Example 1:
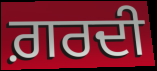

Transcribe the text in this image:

ਗ਼ਰਦੀ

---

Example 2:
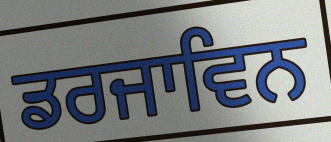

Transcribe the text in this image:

ਡਰਜਾਵਿਨ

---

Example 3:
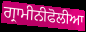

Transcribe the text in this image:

ਗ੍ਰਾਮੀਨੀਫੋਲੀਆ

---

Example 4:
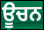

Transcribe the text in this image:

ਊਚਨ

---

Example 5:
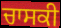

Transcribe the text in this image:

ਚਾਸਕੀ